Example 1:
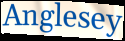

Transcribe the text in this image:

Anglesey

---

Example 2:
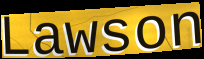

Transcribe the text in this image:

Lawson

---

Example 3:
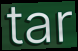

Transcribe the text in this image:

tar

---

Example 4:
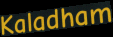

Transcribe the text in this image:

Kaladham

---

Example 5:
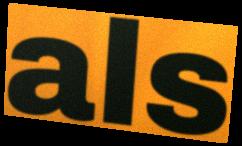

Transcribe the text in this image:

als